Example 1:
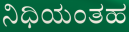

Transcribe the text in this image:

ನಿಧಿಯಂತಹ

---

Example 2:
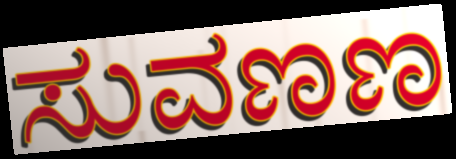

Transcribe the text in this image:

ಸುವಣಣ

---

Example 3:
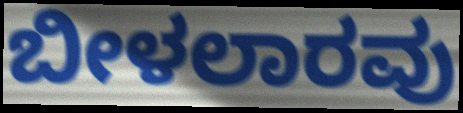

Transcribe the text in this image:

ಬೀಳಲಾರವು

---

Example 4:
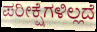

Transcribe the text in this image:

ಪರೀಕ್ಷೆಗಳಿಲ್ಲದೆ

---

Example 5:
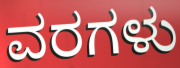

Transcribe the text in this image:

ವರಗಳು